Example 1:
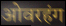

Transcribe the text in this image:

ओवरहंग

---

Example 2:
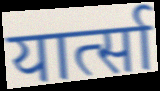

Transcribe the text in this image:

यार्त्सा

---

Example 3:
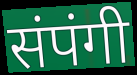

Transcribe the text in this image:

संपंगी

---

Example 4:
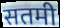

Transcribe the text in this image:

सतमी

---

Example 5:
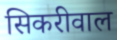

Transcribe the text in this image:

सिकरीवाल